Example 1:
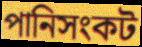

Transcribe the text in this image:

পানিসংকট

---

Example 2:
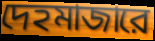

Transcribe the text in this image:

দেহমাজারে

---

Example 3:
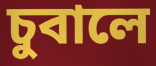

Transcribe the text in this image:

চুবালে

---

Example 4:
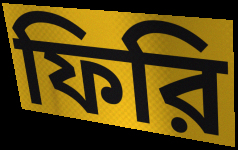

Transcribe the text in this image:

ফিরি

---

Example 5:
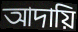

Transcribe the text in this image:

আদায়ি